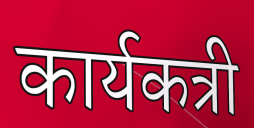
कार्यकत्री